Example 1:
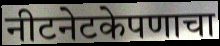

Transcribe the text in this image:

नीटनेटकेपणाचा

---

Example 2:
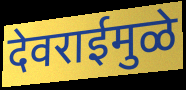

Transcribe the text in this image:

देवराईमुळे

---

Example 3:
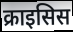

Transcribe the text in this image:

क्राइसिस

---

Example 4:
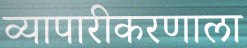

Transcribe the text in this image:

व्यापारीकरणाला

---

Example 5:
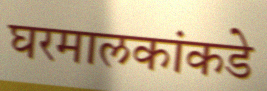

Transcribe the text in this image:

घरमालकांकडे